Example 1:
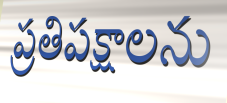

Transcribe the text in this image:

ప్రతిపక్షాలను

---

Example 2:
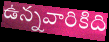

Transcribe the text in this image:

ఉన్నవారికిది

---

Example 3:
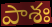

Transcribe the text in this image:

పాశః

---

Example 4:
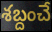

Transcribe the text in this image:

శబ్దంచే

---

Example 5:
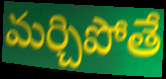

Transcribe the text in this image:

మర్చిపోతే